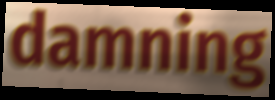
damning